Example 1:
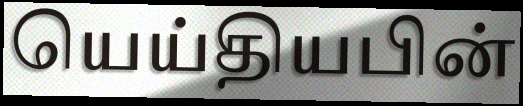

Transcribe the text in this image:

யெய்தியபின்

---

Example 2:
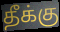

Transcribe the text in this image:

தீக்கு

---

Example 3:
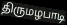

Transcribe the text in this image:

திருமழபாடி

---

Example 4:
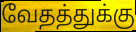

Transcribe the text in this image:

வேதத்துக்கு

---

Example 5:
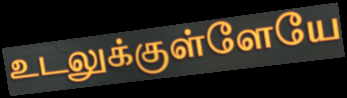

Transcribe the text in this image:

உடலுக்குள்ளேயே